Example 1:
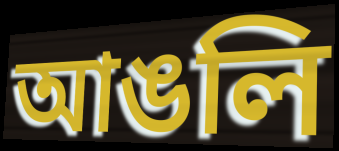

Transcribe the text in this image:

আঙলি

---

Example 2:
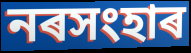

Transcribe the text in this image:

নৰসংহাৰ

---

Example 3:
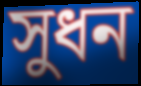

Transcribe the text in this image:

সুধন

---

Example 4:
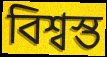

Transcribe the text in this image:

বিশ্বস্ত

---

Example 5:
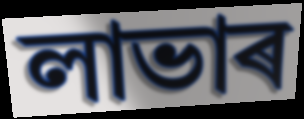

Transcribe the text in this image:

লাভাৰ